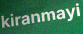
kiranmayi